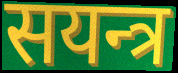
सयन्त्र